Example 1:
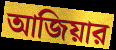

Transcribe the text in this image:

আজিয়ার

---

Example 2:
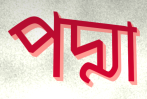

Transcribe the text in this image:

পদ্মা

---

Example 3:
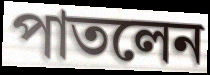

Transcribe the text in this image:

পাতলেন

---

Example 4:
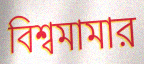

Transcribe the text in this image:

বিশ্বমামার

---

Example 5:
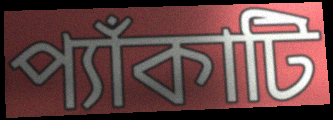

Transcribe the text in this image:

প্যাঁকাটি